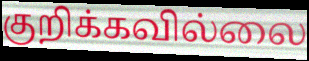
குறிக்கவில்லை